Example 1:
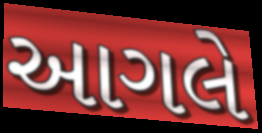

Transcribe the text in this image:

આગલે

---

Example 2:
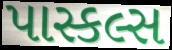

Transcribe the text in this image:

પાસ્કલ્સ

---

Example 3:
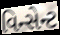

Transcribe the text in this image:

વિન્સેન્ટ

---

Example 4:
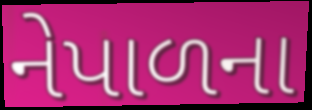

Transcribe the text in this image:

નેપાળના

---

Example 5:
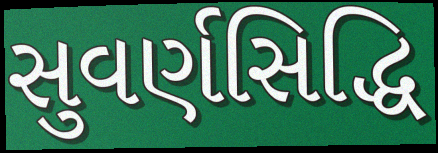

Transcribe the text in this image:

સુવર્ણસિદ્ધિ